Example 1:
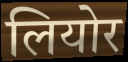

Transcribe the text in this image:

लियोर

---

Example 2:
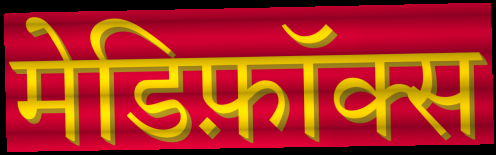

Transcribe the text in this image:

मेडिफ़ॉक्स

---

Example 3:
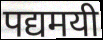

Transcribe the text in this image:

पद्यमयी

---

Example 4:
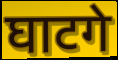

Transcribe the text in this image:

घाटगे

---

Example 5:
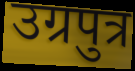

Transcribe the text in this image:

उग्रपुत्र